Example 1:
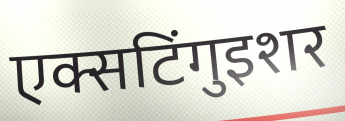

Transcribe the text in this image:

एक्सटिंगुइशर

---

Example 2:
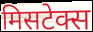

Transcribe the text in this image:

मिसटेक्स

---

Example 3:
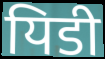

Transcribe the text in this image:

यिडी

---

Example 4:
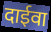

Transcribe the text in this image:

दाईवा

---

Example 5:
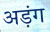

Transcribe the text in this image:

अड़ंग